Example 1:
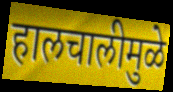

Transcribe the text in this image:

हालचालीमुळे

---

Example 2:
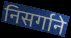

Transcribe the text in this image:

निसर्गाने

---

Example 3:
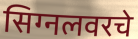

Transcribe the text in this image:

सिग्नलवरचे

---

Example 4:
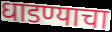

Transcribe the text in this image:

धाडण्याचा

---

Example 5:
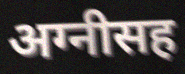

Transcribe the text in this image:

अग्नीसह